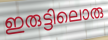
ഇരുട്ടിലൊരു